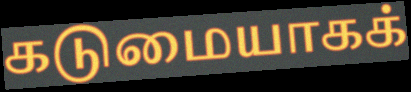
கடுமையாகக்